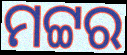
ମଟ୍ଟର